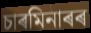
চাৰমিনাৰৰ